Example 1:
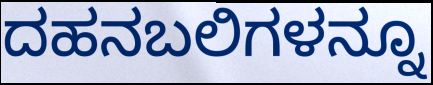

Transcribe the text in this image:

ದಹನಬಲಿಗಳನ್ನೂ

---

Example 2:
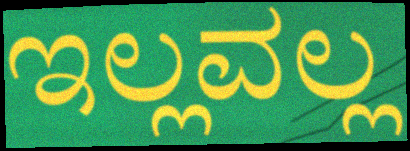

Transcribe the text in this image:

ಇಲ್ಲವಲ್ಲ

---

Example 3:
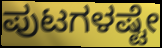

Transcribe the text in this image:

ಪುಟಗಳಷ್ಟೇ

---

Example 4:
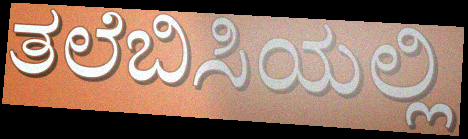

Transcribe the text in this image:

ತಲೆಬಿಸಿಯಲ್ಲಿ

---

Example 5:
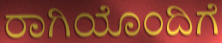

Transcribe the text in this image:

ರಾಗಿಯೊಂದಿಗೆ